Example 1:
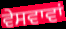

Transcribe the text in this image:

ਵੇਸਵਾਵਾਂ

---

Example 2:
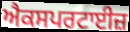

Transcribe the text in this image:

ਐਕਸਪਰਟਾਈਜ਼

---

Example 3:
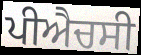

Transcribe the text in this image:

ਪੀਐਚਸੀ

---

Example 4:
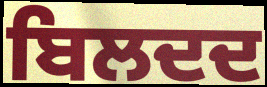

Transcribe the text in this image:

ਬਿਲਦਦ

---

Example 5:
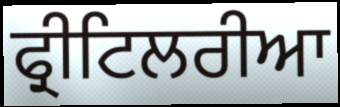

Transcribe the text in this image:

ਫ੍ਰੀਟਿਲਰੀਆ